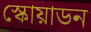
স্কোয়াডন